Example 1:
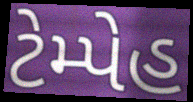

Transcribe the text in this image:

ટેમ્પેહ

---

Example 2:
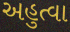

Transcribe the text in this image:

અહુત્વા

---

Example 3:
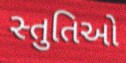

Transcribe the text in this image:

સ્તુતિઓ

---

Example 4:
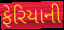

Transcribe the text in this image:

ફેરિયાની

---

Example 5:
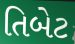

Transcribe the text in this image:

તિબેટ